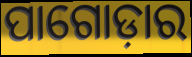
ପାଗୋଡ଼ାର